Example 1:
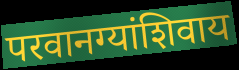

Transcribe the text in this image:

परवानग्यांशिवाय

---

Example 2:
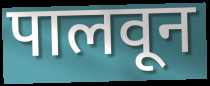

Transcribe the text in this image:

पालवून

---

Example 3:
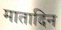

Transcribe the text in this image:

मातादिन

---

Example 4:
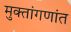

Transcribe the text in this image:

मुक्तांगणांत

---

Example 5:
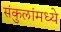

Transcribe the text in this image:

संकुलांमध्ये